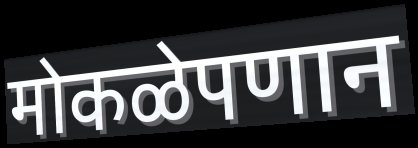
मोकळेपणान